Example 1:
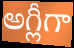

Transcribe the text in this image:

అగ్లీగా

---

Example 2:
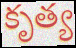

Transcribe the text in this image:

కృత్య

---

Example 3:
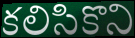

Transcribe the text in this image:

కలిసికొని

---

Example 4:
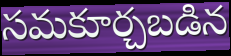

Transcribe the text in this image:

సమకూర్చబడిన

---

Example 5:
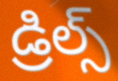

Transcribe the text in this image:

డ్రిల్స్